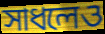
সাধলেও